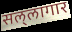
सल्लागार